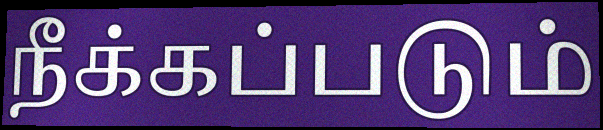
நீக்கப்படும்